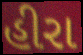
હીરા